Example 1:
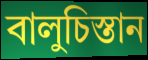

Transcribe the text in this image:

বালুচিস্তান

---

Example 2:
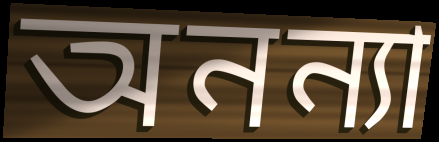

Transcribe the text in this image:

অনন্যা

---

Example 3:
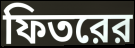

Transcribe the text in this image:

ফিতরের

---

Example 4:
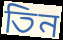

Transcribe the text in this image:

তিন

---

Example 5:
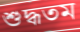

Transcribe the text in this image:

শুদ্ধতম